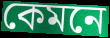
কেমনে